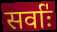
सर्वाः॑